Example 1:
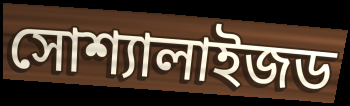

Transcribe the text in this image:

সোশ্যালাইজড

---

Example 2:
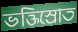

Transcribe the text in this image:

ভক্তিস্রোত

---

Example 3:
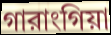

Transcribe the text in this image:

গারাংগিয়া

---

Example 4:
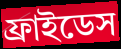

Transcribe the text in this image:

ফ্রাইডেস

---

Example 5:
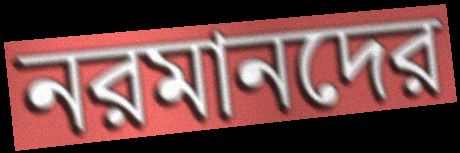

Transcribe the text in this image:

নরমানদের